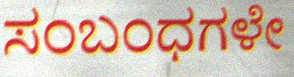
ಸಂಬಂಧಗಳೇ